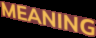
MEANING